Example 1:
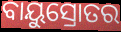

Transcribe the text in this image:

ବାୟୁସ୍ରୋତର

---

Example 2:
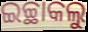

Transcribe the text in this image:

ଇଚ୍ଛାକଲୁ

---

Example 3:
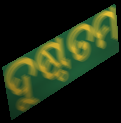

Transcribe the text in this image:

ଦୁଷ୍ଟତମ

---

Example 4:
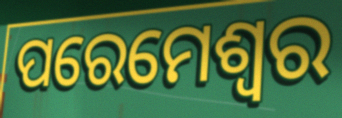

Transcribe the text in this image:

ପରେମେଶ୍ଵର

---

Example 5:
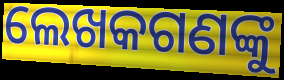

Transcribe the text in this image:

ଲେଖକଗଣଙ୍କୁ